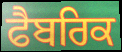
ਫੈਬਰਿਕ